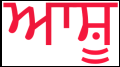
ਆਸ਼ੂ